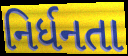
નિર્ધનતા